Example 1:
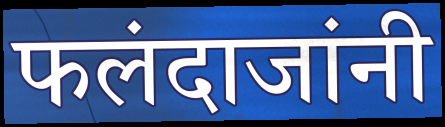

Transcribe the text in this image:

फलंदाजांनी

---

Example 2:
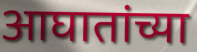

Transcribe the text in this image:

आघातांच्या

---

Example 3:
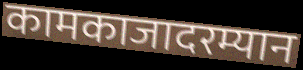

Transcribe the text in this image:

कामकाजादरम्यान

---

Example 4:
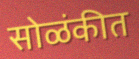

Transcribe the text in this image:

सोळंकीत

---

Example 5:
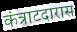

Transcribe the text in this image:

कंत्राटदारास